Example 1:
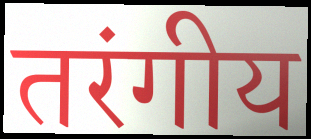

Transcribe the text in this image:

तरंगीय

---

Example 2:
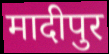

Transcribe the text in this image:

मादीपुर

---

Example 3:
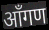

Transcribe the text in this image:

आँगण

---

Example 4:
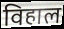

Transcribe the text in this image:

विहाल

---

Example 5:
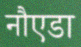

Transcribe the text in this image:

नौएडा